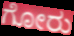
ಗೋರು